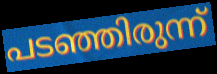
പടഞ്ഞിരുന്ന്